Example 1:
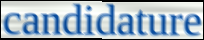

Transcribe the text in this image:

candidature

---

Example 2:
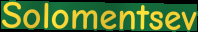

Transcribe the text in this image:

Solomentsev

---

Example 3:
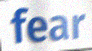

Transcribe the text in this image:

fear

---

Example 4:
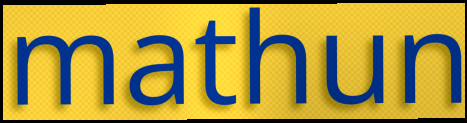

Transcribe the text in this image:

mathun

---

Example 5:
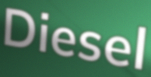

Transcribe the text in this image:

Diesel